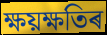
ক্ষয়ক্ষতিৰ